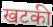
खटकी